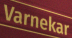
Varnekar